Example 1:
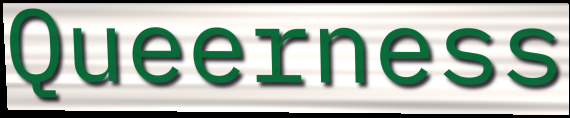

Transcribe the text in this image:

Queerness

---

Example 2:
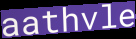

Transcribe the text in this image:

aathvle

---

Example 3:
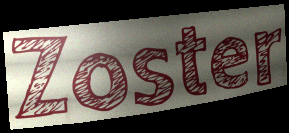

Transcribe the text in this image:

Zoster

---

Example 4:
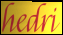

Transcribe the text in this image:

hedri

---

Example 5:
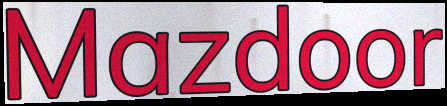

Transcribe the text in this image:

Mazdoor